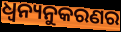
ଧ୍ବନ୍ୟନୁକରଣର